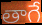
తాగే